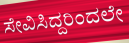
ಸೇವಿಸಿದ್ದರಿಂದಲೇ